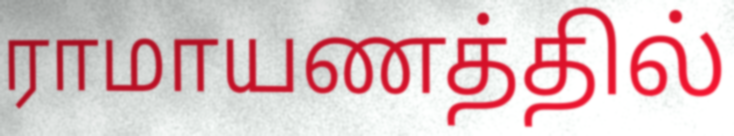
ராமாயணத்தில்